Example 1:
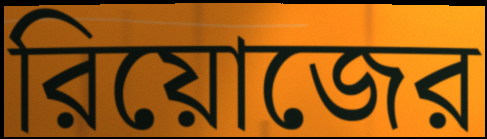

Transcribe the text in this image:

রিয়োজের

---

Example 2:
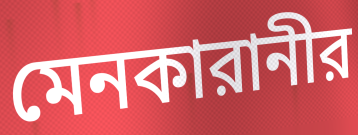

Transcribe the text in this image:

মেনকারানীর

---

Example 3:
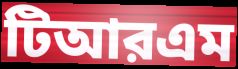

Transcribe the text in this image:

টিআরএম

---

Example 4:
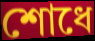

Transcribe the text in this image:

শোধে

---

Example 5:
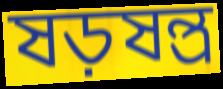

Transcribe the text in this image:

ষড়ষন্ত্র